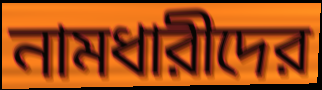
নামধারীদের